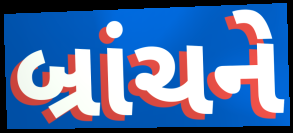
બ્રાંચને